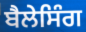
ਬੈਲੇਸਿੰਗ